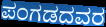
ಪಂಗಡದವರ